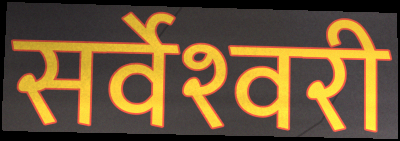
सर्वेश्वरी